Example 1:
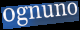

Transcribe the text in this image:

ognuno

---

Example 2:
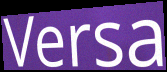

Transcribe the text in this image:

Versa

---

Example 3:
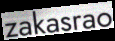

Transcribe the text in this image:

zakasrao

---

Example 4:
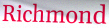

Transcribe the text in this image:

Richmond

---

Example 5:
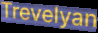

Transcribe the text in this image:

Trevelyan